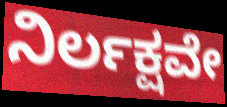
ನಿರ್ಲಕ್ಷವೇ